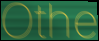
Othe